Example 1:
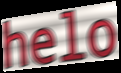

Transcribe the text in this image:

helo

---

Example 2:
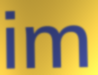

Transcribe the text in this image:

im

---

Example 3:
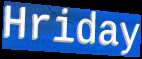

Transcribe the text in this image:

Hriday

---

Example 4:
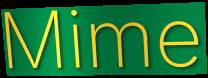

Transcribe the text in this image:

Mime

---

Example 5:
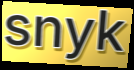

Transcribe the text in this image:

snyk